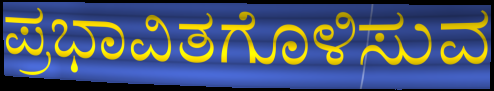
ಪ್ರಭಾವಿತಗೊಳಿಸುವ